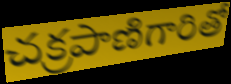
చక్రపాణిగారితో